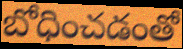
బోధించడంతో